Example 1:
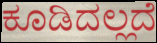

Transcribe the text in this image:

ಕೂಡಿದಲ್ಲದೆ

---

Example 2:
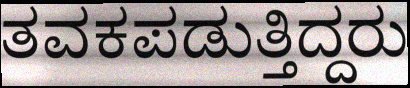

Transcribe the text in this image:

ತವಕಪಡುತ್ತಿದ್ದರು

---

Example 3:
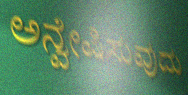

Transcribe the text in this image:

ಅನ್ವೇಷಿಸುವುದು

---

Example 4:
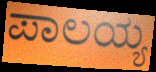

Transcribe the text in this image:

ಪಾಲಯ್ಯ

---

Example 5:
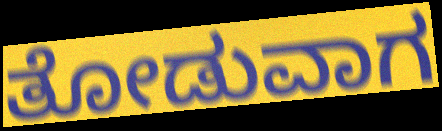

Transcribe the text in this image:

ತೋಡುವಾಗ